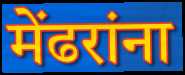
मेंढरांना